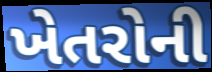
ખેતરોની